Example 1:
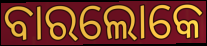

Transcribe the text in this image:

ବାରଲୋକେ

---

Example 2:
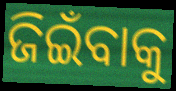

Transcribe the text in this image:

ଜିଇଁବାକୁ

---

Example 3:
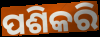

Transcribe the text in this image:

ପଶିକରି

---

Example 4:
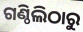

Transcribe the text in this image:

ଗଣ୍ଠିଲିଠାରୁ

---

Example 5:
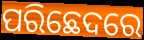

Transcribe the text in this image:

ପରିଛେଦରେ